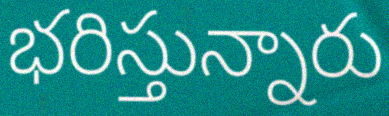
భరిస్తున్నారు